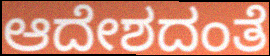
ಆದೇಶದಂತೆ